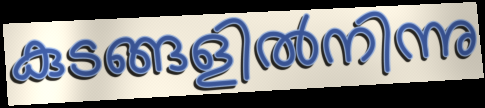
കുടങ്ങളിൽനിന്നു